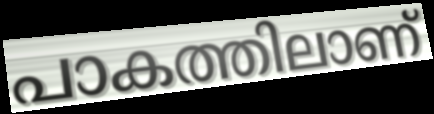
പാകത്തിലാണ്